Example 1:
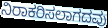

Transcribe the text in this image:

ನಿರಾಕರಿಸಲಾಗದವು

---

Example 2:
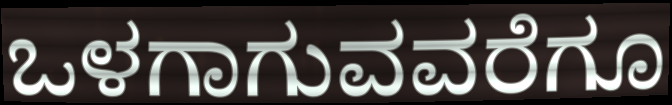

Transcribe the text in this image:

ಒಳಗಾಗುವವರೆಗೂ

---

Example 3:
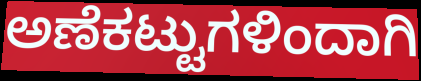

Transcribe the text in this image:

ಅಣೆಕಟ್ಟುಗಳಿಂದಾಗಿ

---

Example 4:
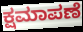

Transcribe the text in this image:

ಕ್ಷಮಾಪಣೆ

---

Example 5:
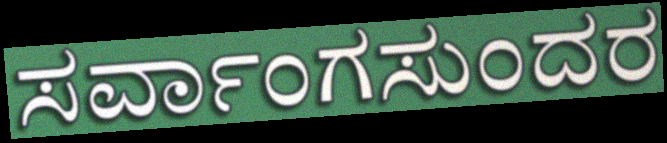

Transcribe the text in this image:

ಸರ್ವಾಂಗಸುಂದರ